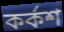
কর্কশ